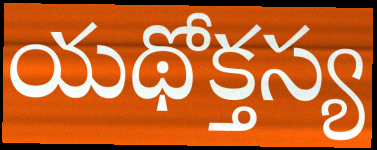
యథోక్తస్య